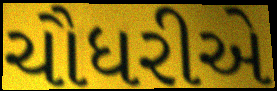
ચૌધરીએ